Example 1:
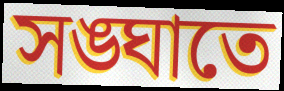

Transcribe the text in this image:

সঙ্ঘাতে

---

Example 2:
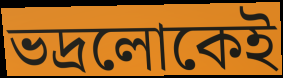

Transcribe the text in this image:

ভদ্রলোকেই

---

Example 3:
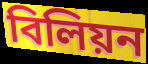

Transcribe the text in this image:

বিলিয়ন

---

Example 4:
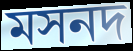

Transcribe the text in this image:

মসনদ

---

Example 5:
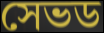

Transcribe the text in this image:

সেভড